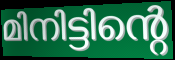
മിനിട്ടിന്റെ